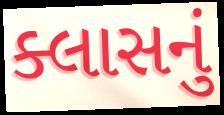
ક્લાસનું